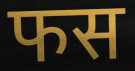
फस